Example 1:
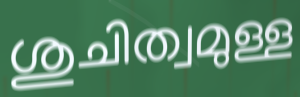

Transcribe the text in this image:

ശുചിത്വമുള്ള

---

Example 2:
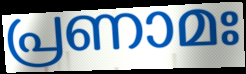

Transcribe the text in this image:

പ്രണാമഃ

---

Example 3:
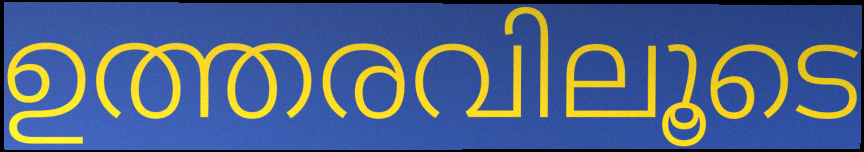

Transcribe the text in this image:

ഉത്തരവിലൂടെ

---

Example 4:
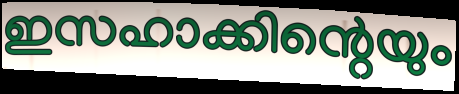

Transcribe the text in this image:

ഇസഹാക്കിന്റെയും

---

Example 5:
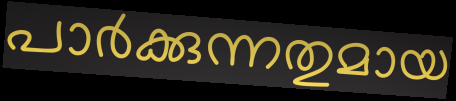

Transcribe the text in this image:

പാർക്കുന്നതുമായ